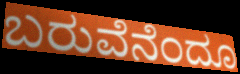
ಬರುವೆನೆಂದೂ